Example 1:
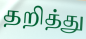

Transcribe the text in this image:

தறித்து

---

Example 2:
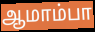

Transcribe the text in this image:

ஆமாம்பா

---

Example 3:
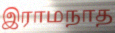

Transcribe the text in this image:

இராமநாத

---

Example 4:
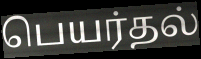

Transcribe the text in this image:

பெயர்தல்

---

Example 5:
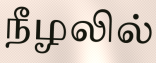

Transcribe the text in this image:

நீழலில்